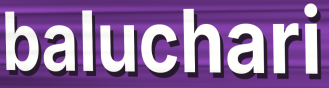
baluchari